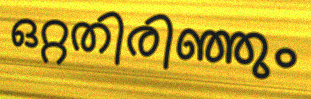
ഒറ്റതിരിഞ്ഞും